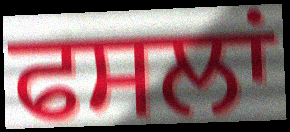
ਫਸਲਾਂ